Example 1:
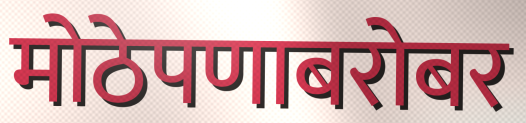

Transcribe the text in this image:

मोठेपणाबरोबर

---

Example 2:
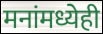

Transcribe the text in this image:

मनांमध्येही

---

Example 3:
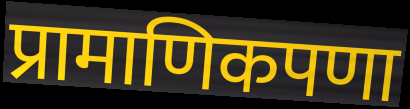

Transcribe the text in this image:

प्रामाणिकपणा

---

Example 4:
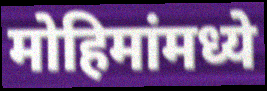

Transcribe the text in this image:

मोहिमांमध्ये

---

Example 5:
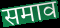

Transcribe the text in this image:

समाव